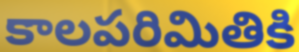
కాలపరిమితికి